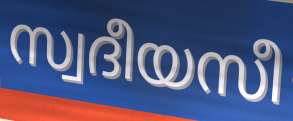
സ്വദീയസീ